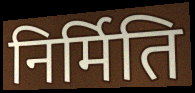
निर्मिति